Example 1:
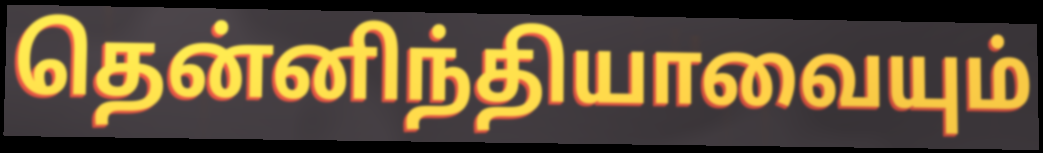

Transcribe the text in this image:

தென்னிந்தியாவையும்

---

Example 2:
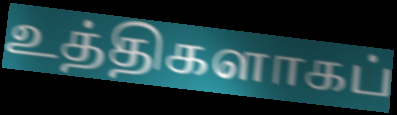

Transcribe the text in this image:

உத்திகளாகப்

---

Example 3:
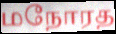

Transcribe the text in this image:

மநோரத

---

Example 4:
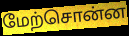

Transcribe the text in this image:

மேற்சொன்ன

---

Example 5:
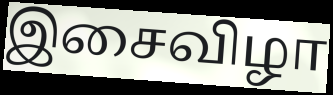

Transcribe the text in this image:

இசைவிழா